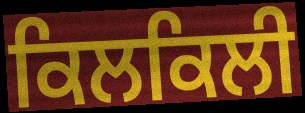
ਕਿਲਕਿਲੀ